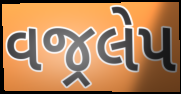
વજ્રલેપ